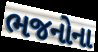
ભજનોના